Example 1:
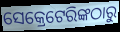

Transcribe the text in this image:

ସେକ୍ରେଟେରିଙ୍କଠାରୁ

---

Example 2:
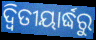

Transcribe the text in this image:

ଦ୍ଵିତୀୟାର୍ଦ୍ଧରୁ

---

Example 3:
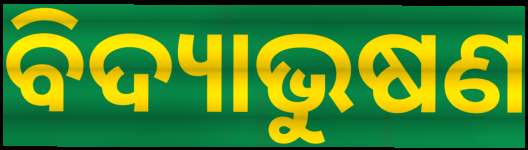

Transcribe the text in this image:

ବିଦ୍ୟାଭୁଷଣ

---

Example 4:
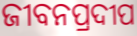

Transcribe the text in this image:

ଜୀବନପ୍ରଦୀପ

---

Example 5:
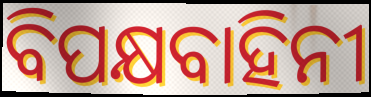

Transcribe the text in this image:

ବିପକ୍ଷବାହିନୀ